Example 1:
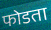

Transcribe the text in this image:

फोडता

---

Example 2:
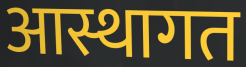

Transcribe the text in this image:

आस्थागत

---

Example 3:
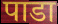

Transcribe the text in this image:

पाडा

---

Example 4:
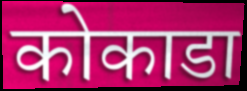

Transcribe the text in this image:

कोकाडा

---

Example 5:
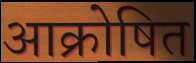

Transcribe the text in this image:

आक्रोषित